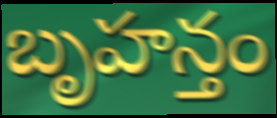
బృహన్తం